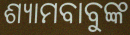
ଶ୍ୟାମବାବୁଙ୍କ